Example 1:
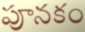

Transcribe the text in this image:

పూనకం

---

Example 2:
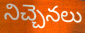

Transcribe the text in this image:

నిచ్చెనలు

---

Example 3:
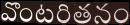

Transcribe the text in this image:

వొంటరితనం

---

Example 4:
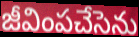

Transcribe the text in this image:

జీవింపచేసెను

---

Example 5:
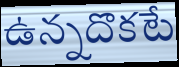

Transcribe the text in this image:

ఉన్నదొకటే